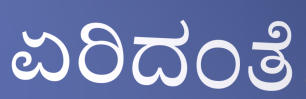
ಏರಿದಂತೆ